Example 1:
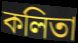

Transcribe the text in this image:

কলিতা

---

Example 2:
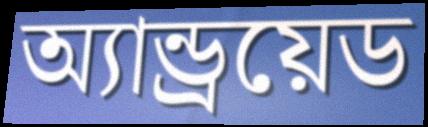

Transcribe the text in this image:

অ্যান্ড্রয়েড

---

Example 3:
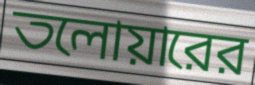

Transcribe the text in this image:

তলোয়ারের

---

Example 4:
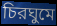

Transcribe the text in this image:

চিরঘুমে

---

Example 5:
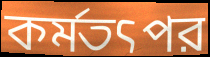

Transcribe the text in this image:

কর্মতৎপর